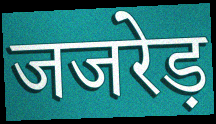
जजरेड़